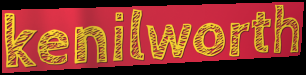
kenilworth